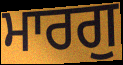
ਮਾਰਗੁ